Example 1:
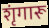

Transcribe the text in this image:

शृंगारू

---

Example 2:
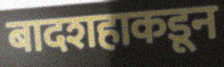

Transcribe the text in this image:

बादशहाकडून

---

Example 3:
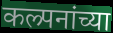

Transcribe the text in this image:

कल्पनांच्या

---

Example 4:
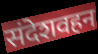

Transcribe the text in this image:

संदेशवहन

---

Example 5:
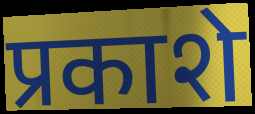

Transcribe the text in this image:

प्रकाशे